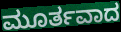
ಮೂರ್ತವಾದ